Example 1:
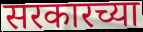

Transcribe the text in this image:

सरकारच्या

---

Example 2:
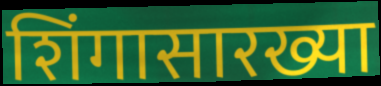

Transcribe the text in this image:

शिंगासारख्या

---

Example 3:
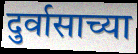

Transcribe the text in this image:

दुर्वासाच्या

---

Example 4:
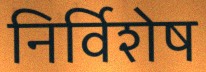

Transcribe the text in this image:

निर्विशेष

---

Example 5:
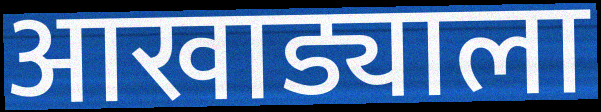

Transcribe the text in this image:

आखाड्याला